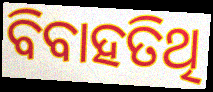
ବିବାହତିଥି